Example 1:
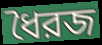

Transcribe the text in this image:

ধৈরজ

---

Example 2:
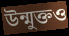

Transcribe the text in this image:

উন্মুক্তও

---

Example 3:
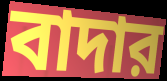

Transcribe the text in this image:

বাদার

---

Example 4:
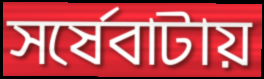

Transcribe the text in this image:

সর্ষেবাটায়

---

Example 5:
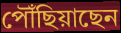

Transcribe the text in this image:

পৌঁছিয়াছেন